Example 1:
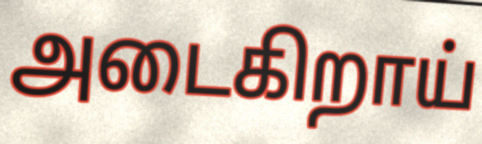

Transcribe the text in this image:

அடைகிறாய்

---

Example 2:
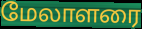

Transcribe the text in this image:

மேலாளரை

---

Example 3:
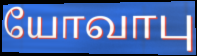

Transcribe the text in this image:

யோவாபு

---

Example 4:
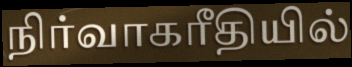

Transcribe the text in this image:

நிர்வாகரீதியில்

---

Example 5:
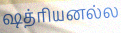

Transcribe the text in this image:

ஷத்ரியனல்ல